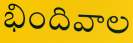
భిందివాల